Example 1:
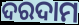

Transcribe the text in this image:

ଦରଦାମ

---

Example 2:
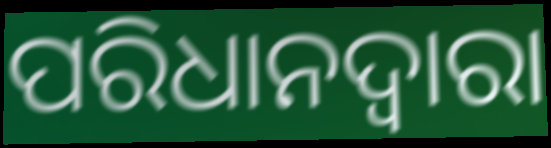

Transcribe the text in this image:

ପରିଧାନଦ୍ୱାରା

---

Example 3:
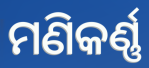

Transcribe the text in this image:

ମଣିକର୍ଣ୍ଣ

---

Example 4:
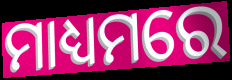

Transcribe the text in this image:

ମାଧ୍ୟମରେ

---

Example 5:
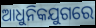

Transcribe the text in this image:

ଆଧୁନିକଯୁଗରେ